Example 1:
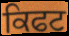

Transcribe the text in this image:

ਕਿਫਟ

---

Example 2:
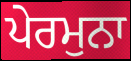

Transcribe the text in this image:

ਪੇਰਮੁਨਾ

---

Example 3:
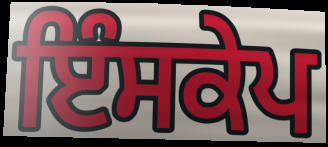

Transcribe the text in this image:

ਇੰਸਕੇਪ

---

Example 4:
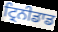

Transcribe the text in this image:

ਟ੍ਰਿਨੀਡਾਡ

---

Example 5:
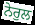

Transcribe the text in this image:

ਨੇਰੁਲ